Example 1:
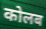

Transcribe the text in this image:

कोलब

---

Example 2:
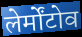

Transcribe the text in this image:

लेर्मोंटोव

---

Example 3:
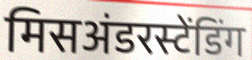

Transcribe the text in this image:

मिसअंडरस्टेंडिंग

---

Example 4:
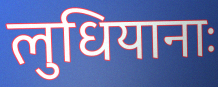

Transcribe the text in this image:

लुधियानाः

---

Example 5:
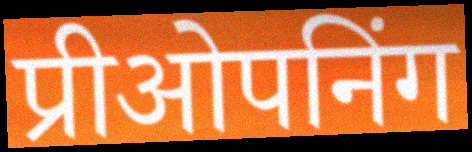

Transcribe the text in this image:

प्रीओपनिंग